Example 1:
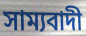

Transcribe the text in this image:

সাম্যবাদী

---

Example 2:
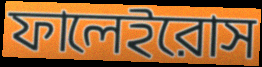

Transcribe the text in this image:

ফালেইরোস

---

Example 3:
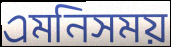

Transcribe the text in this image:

এমনিসময়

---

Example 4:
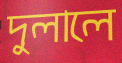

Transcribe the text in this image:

দুলালে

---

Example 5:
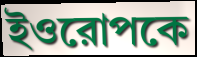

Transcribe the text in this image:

ইওরোপকে